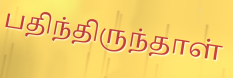
பதிந்திருந்தாள்